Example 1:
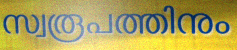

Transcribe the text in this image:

സ്വരൂപത്തിനും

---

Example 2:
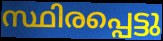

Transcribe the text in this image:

സ്ഥിരപ്പെട്ടു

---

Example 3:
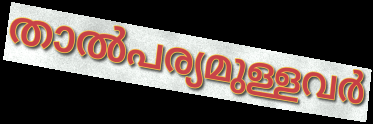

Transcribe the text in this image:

താൽപര്യമുള്ളവർ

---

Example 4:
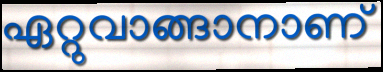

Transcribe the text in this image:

ഏറ്റുവാങ്ങാനാണ്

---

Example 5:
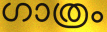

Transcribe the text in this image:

ഗാത്രം